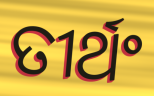
ତୀର୍ଥଂ